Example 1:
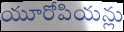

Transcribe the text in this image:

యూరోపియన్లు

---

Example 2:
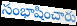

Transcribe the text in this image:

సంభాషించారు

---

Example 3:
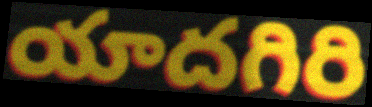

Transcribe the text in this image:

యాదగిరి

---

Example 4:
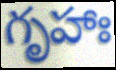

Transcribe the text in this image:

గృహాః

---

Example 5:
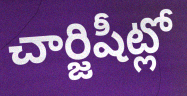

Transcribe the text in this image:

చార్జిషీట్లో